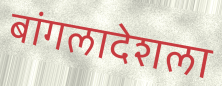
बांगलादेशला